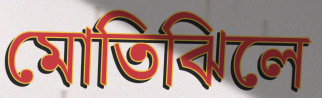
মোতিঝিলে